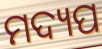
ମଦ୍ୟପ